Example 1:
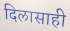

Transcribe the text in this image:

दिलासाही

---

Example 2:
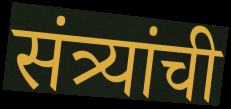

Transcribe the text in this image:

संत्र्यांची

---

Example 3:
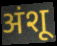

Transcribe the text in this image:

अंशू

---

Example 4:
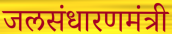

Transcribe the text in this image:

जलसंधारणमंत्री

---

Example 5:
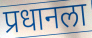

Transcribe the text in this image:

प्रधानला